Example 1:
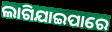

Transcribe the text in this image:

ଲାଗିଯାଇପାରେ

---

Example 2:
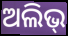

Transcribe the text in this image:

ଅଲିଭ୍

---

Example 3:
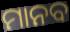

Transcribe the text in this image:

ମାନବ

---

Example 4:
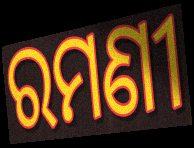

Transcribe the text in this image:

ରମଣୀ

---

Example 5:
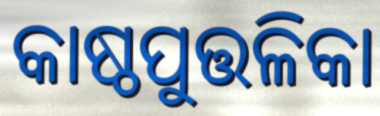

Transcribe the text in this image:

କାଷ୍ଠପୁତ୍ତଳିକା